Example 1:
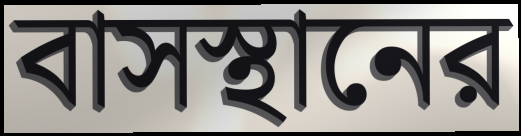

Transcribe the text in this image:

বাসস্থানের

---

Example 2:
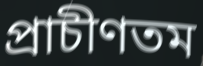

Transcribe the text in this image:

প্রাচীণতম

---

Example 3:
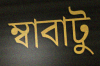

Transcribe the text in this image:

ম্বাবাটু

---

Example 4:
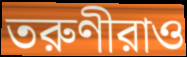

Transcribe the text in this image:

তরুণীরাও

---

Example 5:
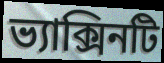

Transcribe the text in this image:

ভ্যাক্সিনটি